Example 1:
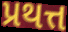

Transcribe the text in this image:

પ્રથત્ત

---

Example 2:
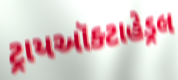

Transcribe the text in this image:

ટ્રાયઑક્ટાહેડ્રલ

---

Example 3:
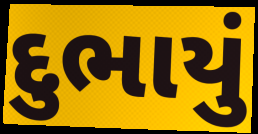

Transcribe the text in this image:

દુભાયું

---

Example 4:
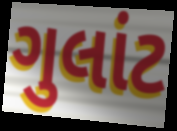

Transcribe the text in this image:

ગુલાંટ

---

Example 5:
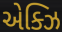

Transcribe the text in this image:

એક્ઝિ